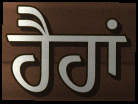
ਹੈਹਾਂ